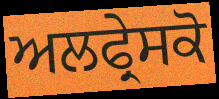
ਅਲਫ੍ਰੇਸਕੋ